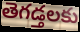
తెగడ్తలకు